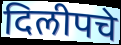
दिलीपचे